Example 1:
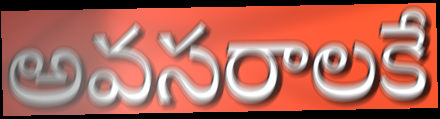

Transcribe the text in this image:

అవసరాలకే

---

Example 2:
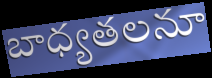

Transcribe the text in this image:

బాధ్యతలనూ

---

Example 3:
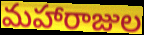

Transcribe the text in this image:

మహారాజుల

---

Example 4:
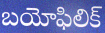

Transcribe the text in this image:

బయోఫిలిక్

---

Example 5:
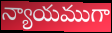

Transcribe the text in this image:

న్యాయముగా